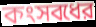
কংসবধের